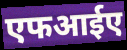
एफआईए